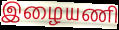
இழையணி